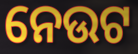
ନେଉଟ